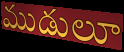
ముడులూ